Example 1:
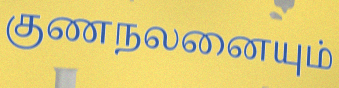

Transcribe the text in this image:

குணநலனையும்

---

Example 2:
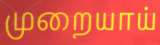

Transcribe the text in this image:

முறையாய்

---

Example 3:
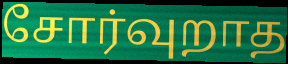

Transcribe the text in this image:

சோர்வுறாத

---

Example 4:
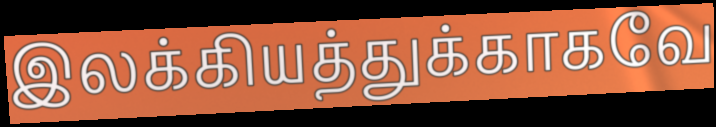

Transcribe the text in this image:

இலக்கியத்துக்காகவே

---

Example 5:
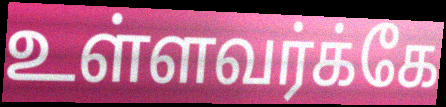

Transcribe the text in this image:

உள்ளவர்க்கே